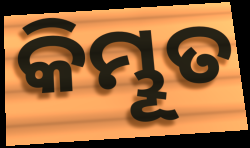
କିମ୍ଭୂତ